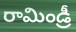
రామిండ్రీ